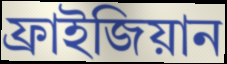
ফ্রাইজিয়ান